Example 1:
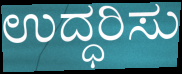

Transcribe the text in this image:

ಉದ್ಧರಿಸು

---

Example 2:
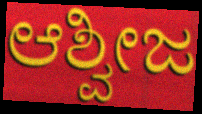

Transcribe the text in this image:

ಆಶ್ವೀಜ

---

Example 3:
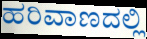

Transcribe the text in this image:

ಹರಿವಾಣದಲ್ಲಿ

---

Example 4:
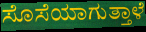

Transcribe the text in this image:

ಸೊಸೆಯಾಗುತ್ತಾಳೆ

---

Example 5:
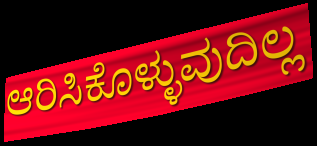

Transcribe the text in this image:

ಆರಿಸಿಕೊಳ್ಳುವುದಿಲ್ಲ